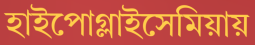
হাইপোগ্লাইসেমিয়ায়